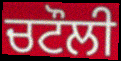
ਚਟੌਲੀ